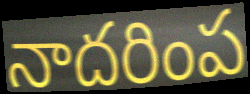
నాదరింప